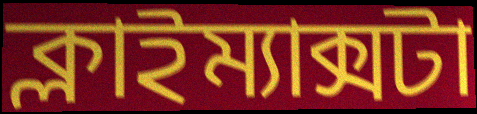
ক্লাইম্যাক্সটা